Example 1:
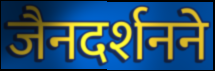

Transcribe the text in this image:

जैनदर्शनने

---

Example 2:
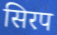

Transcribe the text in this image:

सिरप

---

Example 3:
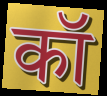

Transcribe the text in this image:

कॉ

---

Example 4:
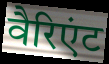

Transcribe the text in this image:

वैरिएंट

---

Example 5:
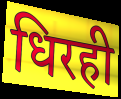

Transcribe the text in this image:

धिरही